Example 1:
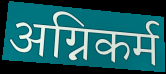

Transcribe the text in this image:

अग्निकर्म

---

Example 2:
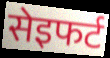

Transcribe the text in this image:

सेइफर्ट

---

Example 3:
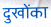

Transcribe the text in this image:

दुखोंका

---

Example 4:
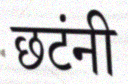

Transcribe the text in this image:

छटंनी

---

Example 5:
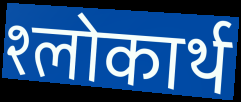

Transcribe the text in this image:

श्लोकार्थ